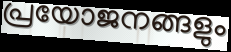
പ്രയോജനങ്ങളും